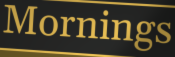
Mornings